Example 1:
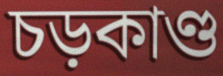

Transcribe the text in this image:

চড়কাণ্ড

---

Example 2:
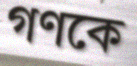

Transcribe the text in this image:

গণকে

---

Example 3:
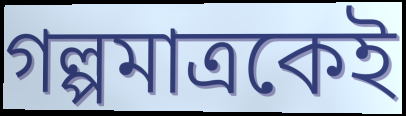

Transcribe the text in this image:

গল্পমাত্রকেই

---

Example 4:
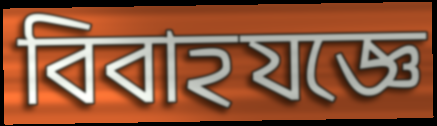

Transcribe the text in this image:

বিবাহযজ্ঞে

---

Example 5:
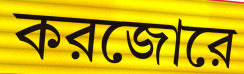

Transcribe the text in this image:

করজোরে